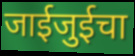
जाईजुईचा